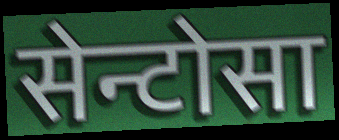
सेन्टोसा